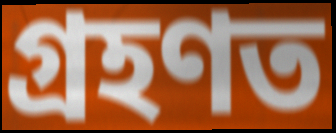
গ্ৰহণত